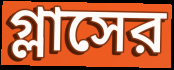
গ্লাসের